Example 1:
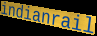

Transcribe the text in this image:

indianrail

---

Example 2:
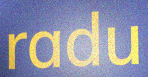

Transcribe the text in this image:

radu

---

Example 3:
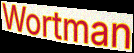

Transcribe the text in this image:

Wortman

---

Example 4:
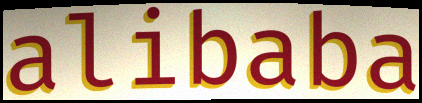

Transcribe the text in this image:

alibaba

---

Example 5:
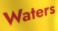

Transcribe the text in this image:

Waters